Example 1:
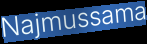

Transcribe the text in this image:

Najmussama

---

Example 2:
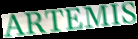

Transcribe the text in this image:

ARTEMIS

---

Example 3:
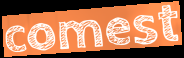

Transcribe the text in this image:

comest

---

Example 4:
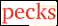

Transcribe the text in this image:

pecks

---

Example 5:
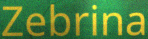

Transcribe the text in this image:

Zebrina